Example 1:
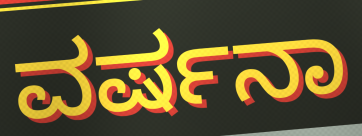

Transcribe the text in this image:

ವರ್ಷನಾ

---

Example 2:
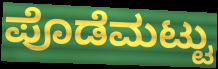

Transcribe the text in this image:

ಪೊಡೆಮಟ್ಟು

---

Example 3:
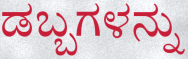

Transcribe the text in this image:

ಡಬ್ಬಗಳನ್ನು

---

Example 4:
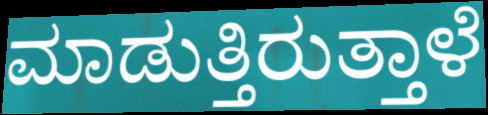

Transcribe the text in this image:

ಮಾಡುತ್ತಿರುತ್ತಾಳೆ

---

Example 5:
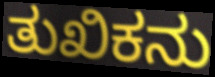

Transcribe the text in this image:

ತುಖಿಕನು